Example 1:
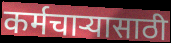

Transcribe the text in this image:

कर्मचाऱ्यासाठी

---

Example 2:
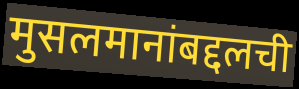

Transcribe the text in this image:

मुसलमानांबद्दलची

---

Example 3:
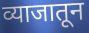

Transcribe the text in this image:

व्याजातून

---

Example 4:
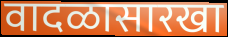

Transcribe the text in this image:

वादळासारखा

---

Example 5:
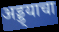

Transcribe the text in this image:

अड्ड्याचा